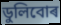
ডুলিবোৰ